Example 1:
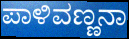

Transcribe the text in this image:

ಪಾಳಿವಣ್ಣನಾ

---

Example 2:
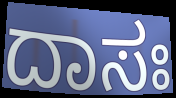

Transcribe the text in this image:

ದಾಸಃ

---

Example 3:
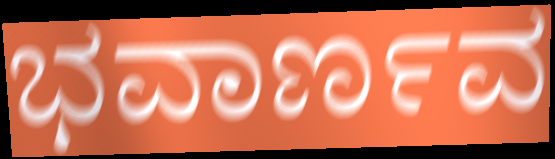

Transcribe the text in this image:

ಭವಾರ್ಣವ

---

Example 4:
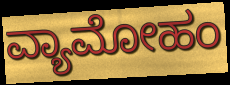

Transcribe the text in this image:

ವ್ಯಾಮೋಹಂ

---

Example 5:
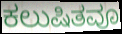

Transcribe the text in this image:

ಕಲುಷಿತವೂ